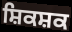
ਸ਼ਿਕਸ਼ਕ